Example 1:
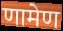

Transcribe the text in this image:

णामेण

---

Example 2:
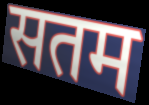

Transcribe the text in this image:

सतम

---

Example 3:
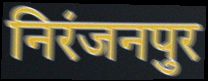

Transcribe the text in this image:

निरंजनपुर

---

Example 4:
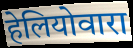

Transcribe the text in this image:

हेलियोवारा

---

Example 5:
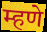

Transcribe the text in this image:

म्हणे